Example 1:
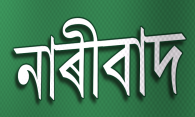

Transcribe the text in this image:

নাৰীবাদ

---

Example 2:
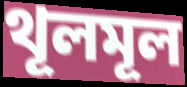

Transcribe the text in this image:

থূলমূল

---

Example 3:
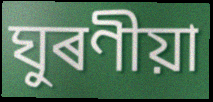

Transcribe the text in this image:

ঘুৰণীয়া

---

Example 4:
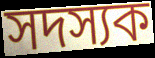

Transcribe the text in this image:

সদস্যক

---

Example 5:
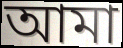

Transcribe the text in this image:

আমা